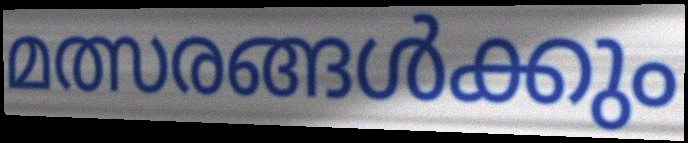
മത്സരങ്ങൾക്കും